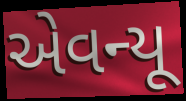
એવન્યૂ